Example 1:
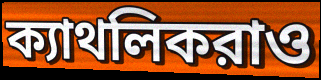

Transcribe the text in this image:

ক্যাথলিকরাও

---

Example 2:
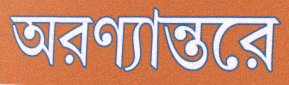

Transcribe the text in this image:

অরণ্যান্তরে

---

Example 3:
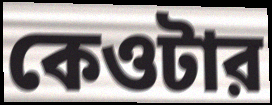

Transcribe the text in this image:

কেওটার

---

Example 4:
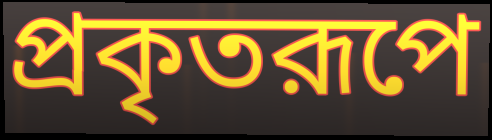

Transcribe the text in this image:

প্রকৃতরূপে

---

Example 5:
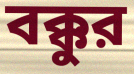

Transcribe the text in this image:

বক্কুর